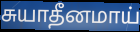
சுயாதீனமாய்